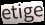
etige